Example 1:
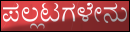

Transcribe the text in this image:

ಪಲ್ಲಟಗಳೇನು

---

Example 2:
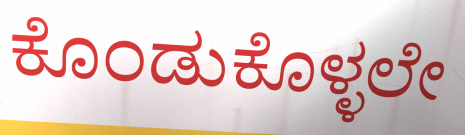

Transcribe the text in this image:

ಕೊಂಡುಕೊಳ್ಳಲೇ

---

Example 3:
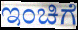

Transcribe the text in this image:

ಇಂಚಿಗೆ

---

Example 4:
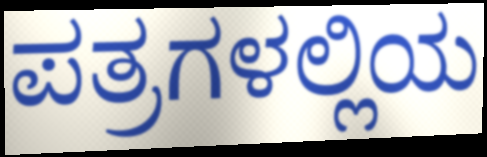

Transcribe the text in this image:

ಪತ್ರಗಳಲ್ಲಿಯ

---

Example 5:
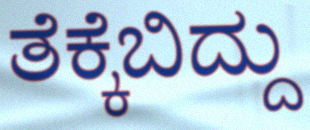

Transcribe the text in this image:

ತೆಕ್ಕೆಬಿದ್ದು